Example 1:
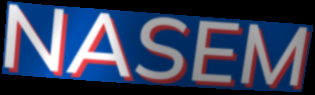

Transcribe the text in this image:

NASEM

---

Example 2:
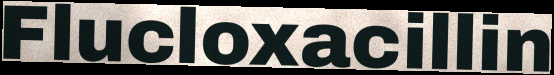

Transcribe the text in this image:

Flucloxacillin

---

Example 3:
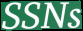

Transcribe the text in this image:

SSNs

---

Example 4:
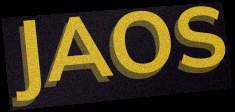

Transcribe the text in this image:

JAOS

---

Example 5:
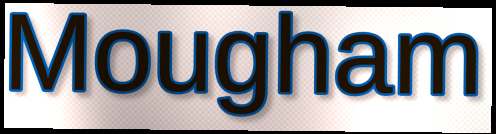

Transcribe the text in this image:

Mougham